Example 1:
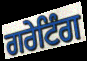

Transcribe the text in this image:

ਗਰੇਟਿੰਗ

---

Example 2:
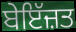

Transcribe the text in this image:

ਬੇਇੱਜ਼ਤ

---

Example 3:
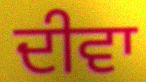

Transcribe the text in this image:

ਦੀਵਾ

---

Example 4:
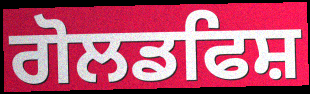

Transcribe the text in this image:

ਗੋਲਡਫਿਸ਼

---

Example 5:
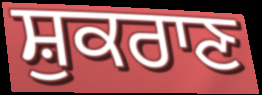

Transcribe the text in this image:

ਸ਼ੁਕਰਾਣ